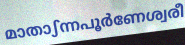
മാതാഽന്നപൂർണേശ്വരീ